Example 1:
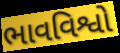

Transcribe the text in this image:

ભાવવિશ્વો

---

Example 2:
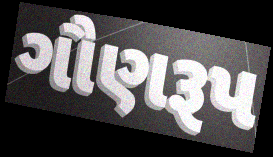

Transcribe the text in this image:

ગૌણરૂપ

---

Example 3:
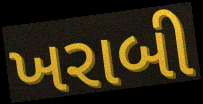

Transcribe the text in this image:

ખરાબી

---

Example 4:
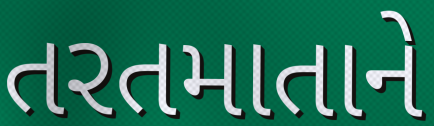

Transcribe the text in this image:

તરતમાતાને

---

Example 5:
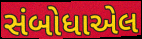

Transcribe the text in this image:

સંબોધાએલ